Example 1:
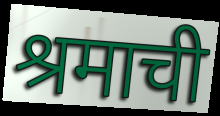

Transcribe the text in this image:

श्रमाची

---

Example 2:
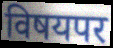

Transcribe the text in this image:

विषयपर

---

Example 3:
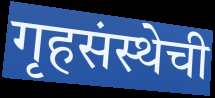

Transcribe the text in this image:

गृहसंस्थेची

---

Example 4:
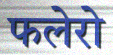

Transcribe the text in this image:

फलेरो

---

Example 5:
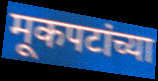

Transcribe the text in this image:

मूकपटांच्या